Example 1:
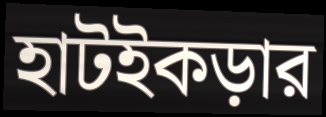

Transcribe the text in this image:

হাটইকড়ার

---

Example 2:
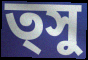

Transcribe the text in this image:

ত্সু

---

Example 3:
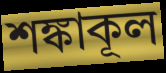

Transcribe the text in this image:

শঙ্কাকূল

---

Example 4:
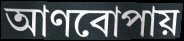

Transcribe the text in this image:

আণবোপায়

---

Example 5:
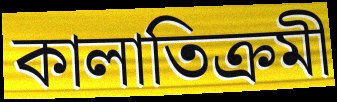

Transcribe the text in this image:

কালাতিক্রমী